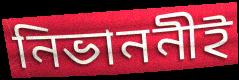
নিভাননীই